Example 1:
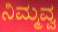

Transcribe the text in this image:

ನಿಮ್ಮವ್ವ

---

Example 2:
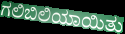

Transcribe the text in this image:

ಗಲಿಬಿಲಿಯಾಯಿತು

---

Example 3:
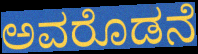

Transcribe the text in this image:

ಅವರೊಡನೆ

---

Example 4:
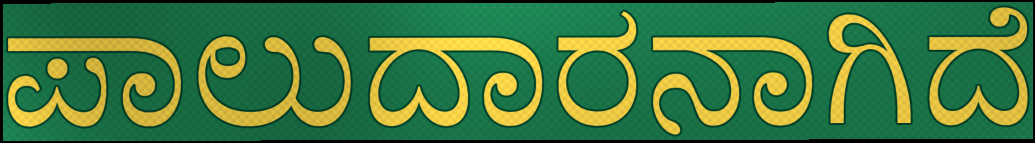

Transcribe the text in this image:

ಪಾಲುದಾರನಾಗಿದೆ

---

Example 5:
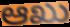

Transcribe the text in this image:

ಆಖು